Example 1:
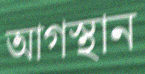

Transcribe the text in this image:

আগস্থান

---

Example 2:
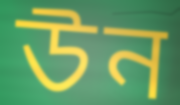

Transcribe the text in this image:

উন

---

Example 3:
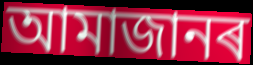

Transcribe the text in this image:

আমাজানৰ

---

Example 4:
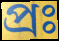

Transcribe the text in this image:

প্ৰঃ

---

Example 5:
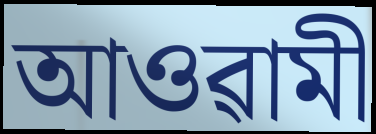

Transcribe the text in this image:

আওৱামী